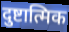
दुष्टात्मिक